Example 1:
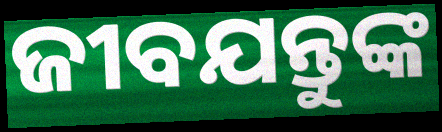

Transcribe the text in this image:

ଜୀବଯନ୍ତୁଙ୍କ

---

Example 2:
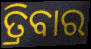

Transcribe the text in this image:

ତ୍ରିବାର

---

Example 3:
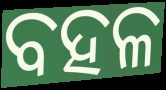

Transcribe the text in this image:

ବହଳ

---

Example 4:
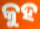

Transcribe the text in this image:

କୁହ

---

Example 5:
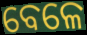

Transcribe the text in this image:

ବେଳେ